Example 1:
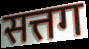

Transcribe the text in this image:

सत्तग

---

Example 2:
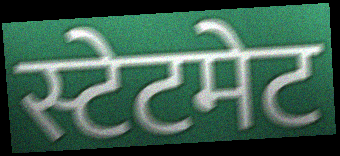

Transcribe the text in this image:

स्टेटमेट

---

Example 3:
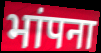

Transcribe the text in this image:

भांपना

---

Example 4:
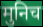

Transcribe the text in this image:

मुनिच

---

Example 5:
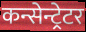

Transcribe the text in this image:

कन्सेन्ट्रेटर